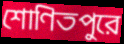
শোণিতপুরে